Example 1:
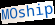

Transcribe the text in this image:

MOship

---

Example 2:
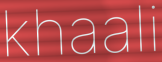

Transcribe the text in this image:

khaali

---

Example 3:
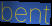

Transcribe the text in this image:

bent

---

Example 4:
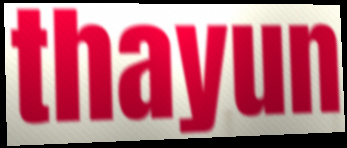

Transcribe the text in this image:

thayun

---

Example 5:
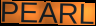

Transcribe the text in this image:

PEARL